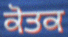
ਕੋਤਕ